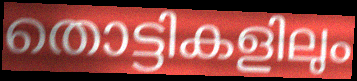
തൊട്ടികളിലും